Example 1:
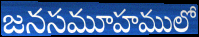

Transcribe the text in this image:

జనసమూహములో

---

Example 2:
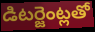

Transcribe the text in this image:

డిటర్జెంట్లతో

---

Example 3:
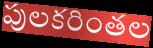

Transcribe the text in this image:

పులకరింతల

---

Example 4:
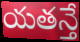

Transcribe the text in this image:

యతన్తే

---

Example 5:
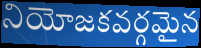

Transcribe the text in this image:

నియోజకవర్గమైన